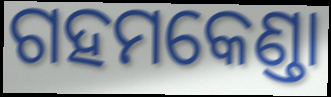
ଗହମକେଣ୍ଡା